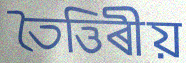
তৈত্তিৰীয়